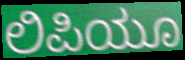
ಲಿಪಿಯೂ